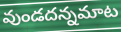
వుండదన్నమాట